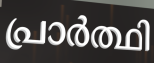
പ്രാർത്ഥി